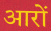
आरों